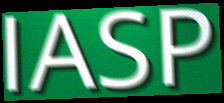
IASP